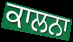
ਕਾਲਨਾ